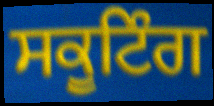
ਸਕੂਟਿੰਗ